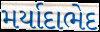
મર્યાદાભેદ